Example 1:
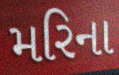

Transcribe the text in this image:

મરિના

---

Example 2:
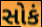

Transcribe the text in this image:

સોકં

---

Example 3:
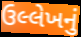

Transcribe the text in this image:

ઉલ્લેખનું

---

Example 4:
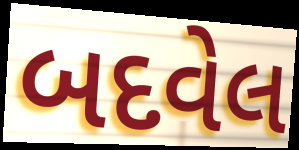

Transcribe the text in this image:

બદવેલ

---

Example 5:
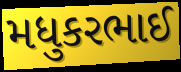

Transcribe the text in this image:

મધુકરભાઈ